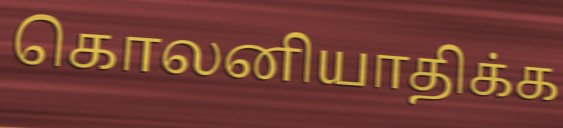
கொலனியாதிக்க